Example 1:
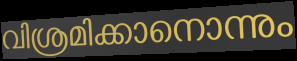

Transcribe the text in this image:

വിശ്രമിക്കാനൊന്നും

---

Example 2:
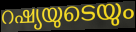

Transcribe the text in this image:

റഷ്യയുടെയും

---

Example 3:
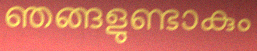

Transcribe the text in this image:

ഞങ്ങളുണ്ടാകും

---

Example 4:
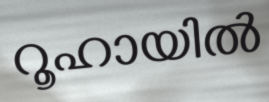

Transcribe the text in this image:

റൂഹായിൽ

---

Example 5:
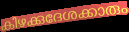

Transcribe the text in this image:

കിഴക്കുദേശക്കാരും